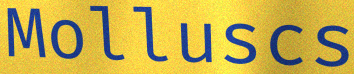
Molluscs